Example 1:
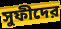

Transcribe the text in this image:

সুফীদের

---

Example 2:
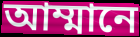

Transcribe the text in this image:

আম্মানে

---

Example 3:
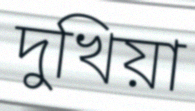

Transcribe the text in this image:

দুখিয়া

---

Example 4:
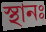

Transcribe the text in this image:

স্থানঃ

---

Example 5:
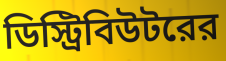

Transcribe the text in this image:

ডিস্ট্রিবিউটরের